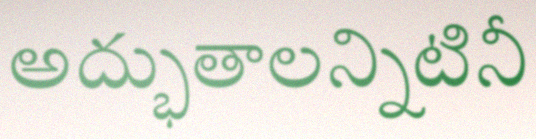
అద్భుతాలన్నిటినీ